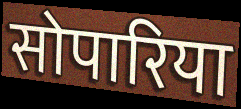
सोपारिया